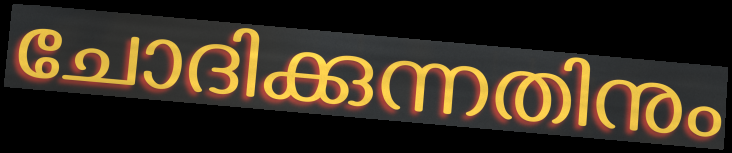
ചോദിക്കുന്നതിനും